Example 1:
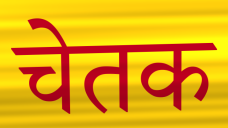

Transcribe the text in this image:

चेतक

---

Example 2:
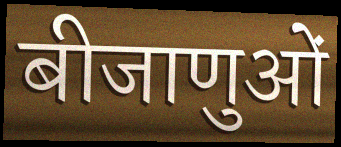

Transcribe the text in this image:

बीजाणुओं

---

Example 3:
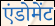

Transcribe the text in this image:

एंडोमेंट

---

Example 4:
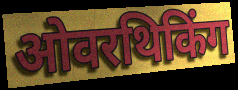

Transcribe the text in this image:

ओवरथिकिंग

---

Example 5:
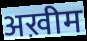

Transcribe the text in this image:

अख़ीम